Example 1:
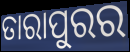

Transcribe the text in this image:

ତାରାପୁରର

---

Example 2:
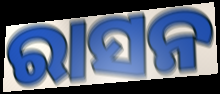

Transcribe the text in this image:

ରାସନ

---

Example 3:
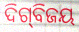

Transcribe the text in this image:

ଦିଗ୍‌ବିଜୟ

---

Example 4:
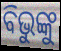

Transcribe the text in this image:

ବିଭୁଙ୍କୁ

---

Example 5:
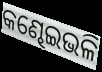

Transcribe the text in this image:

କଣ୍ଢେଇଭଳି